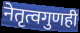
नेतृत्वगुणही